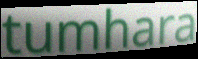
tumhara